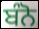
ਬੰਨੋ